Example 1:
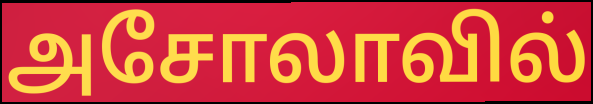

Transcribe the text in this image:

அசோலாவில்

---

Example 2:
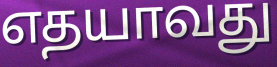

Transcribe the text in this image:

எதயாவது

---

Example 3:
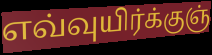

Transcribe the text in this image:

எவ்வுயிர்க்குஞ்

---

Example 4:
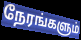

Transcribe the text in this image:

நேரங்களும்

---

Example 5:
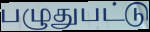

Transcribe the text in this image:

பழுதுபட்டு